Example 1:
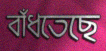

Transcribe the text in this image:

বাঁধতেছে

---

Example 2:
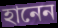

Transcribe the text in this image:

হানেন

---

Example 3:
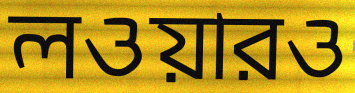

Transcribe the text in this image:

লওয়ারও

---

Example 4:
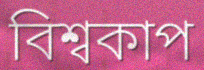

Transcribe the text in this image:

বিশ্বকাপ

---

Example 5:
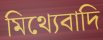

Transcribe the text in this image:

মিথ্যেবাদি